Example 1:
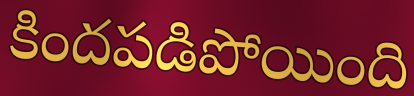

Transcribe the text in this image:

కిందపడిపోయింది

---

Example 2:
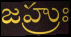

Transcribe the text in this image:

జహ్రుః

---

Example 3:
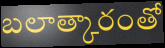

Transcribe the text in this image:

బలాత్కారంతో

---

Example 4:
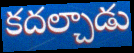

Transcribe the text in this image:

కదల్చాడు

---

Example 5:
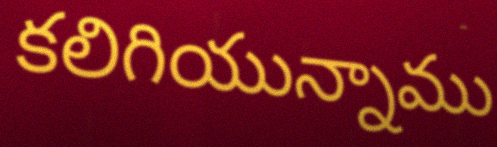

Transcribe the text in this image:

కలిగియున్నాము